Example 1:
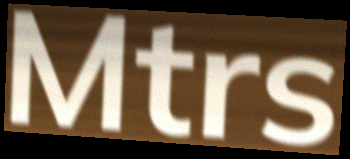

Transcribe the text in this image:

Mtrs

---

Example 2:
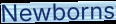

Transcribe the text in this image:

Newborns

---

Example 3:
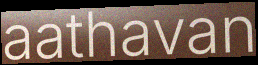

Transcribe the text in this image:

aathavan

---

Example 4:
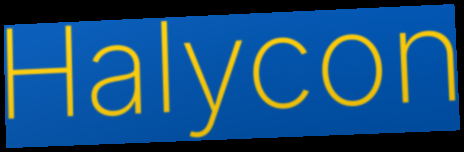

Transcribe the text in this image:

Halycon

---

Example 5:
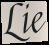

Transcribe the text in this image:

Lie